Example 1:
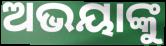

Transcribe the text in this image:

ଅଭୟାଙ୍କୁ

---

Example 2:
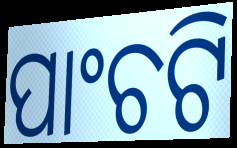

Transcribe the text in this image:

ପାଂଚଟି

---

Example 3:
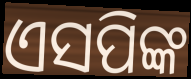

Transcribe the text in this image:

ଏସପିଙ୍କ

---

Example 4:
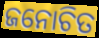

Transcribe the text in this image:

ଜନୋଚିତ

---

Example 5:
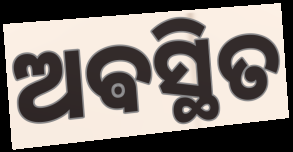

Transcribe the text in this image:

ଅଵସ୍ଥିତ